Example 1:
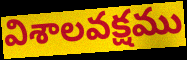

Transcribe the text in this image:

విశాలవక్షము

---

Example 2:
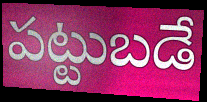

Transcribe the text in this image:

పట్టుబడే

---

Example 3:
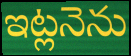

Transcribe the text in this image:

ఇట్లనెను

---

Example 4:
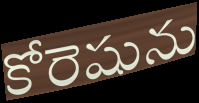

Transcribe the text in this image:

కోరెషును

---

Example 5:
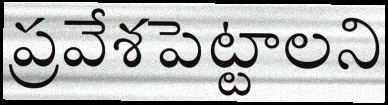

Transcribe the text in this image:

ప్రవేశపెట్టాలని